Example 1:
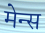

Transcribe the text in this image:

मेन्स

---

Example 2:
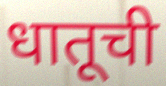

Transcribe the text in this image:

धातूची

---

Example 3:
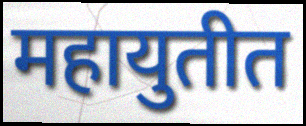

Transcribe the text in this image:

महायुतीत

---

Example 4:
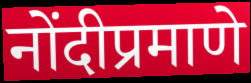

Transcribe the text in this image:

नोंदीप्रमाणे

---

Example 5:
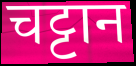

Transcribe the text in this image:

चट्टान